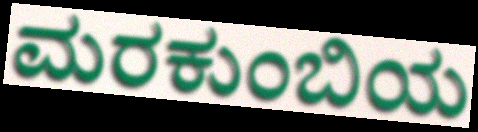
ಮರಕುಂಬಿಯ